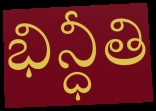
భిన్ధీతి